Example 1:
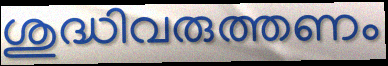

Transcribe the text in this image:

ശുദ്ധിവരുത്തണം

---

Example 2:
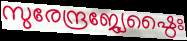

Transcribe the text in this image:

സുരേന്ദ്രജ്യേഷ്ഠൈഃ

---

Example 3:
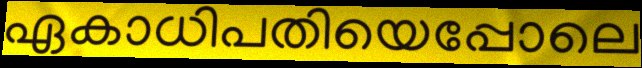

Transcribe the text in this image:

ഏകാധിപതിയെപ്പോലെ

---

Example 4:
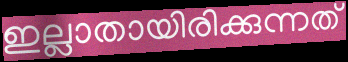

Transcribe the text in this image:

ഇല്ലാതായിരിക്കുന്നത്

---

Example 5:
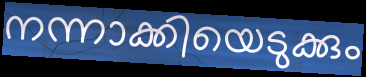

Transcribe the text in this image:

നന്നാക്കിയെടുക്കും